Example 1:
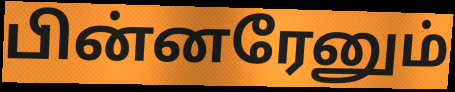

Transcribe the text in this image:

பின்னரேனும்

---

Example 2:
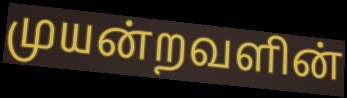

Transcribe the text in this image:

முயன்றவளின்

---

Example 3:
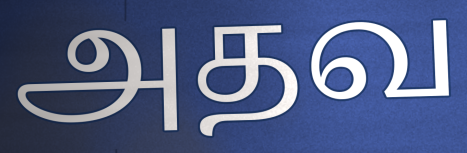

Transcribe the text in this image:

அதவ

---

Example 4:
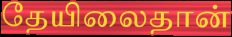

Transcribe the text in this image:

தேயிலைதான்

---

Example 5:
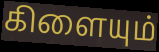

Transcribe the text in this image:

கிளையும்